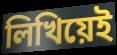
লিখিয়েই